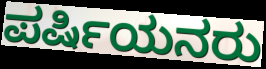
ಪರ್ಷಿಯನರು